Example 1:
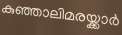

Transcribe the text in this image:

കുഞ്ഞാലിമരയ്ക്കാർ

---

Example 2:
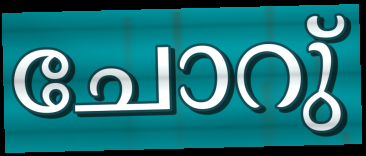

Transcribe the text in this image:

ചോറു്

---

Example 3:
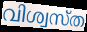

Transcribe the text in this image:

വിശ്വസ്ത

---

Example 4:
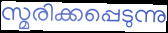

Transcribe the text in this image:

സ്മരിക്കപ്പെടുന്നു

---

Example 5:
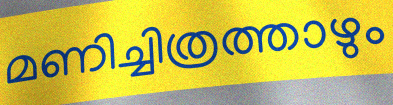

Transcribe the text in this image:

മണിച്ചിത്രത്താഴും